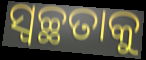
ସ୍ବଚ୍ଛତାକୁ